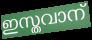
ഇസ്തവാന്